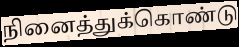
நினைத்துக்கொண்டு